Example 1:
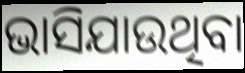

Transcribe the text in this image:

ଭାସିଯାଉଥିବା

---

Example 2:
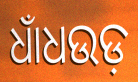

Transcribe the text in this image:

ଧାଁଧଉଡ଼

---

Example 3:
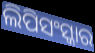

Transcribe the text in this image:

ଲିପିସଂସ୍କାର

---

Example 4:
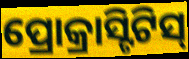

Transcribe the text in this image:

ପ୍ରୋକ୍ରାସ୍ଟିଟିସ୍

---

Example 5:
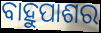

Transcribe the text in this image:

ବାହୁପାଶର